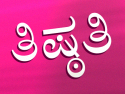
ತಿಷ್ಠತಿ